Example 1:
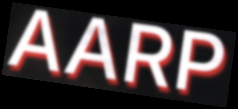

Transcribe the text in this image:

AARP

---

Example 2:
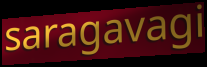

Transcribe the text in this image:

saragavagi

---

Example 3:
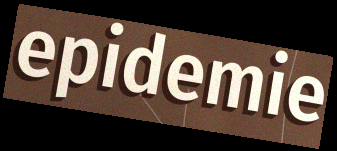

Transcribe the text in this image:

epidemie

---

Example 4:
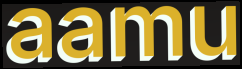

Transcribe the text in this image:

aamu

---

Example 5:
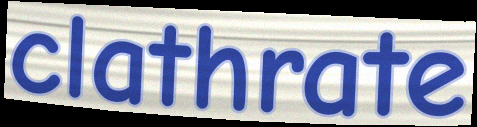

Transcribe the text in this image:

clathrate